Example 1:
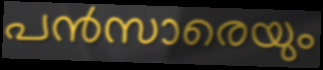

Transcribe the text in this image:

പൻസാരെയും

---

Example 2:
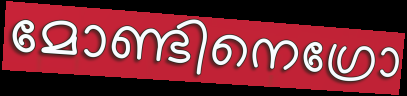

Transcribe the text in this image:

മോണ്ടിനെഗ്രോ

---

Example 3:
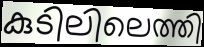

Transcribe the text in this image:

കുടിലിലെത്തി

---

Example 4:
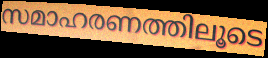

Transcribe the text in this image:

സമാഹരണത്തിലൂടെ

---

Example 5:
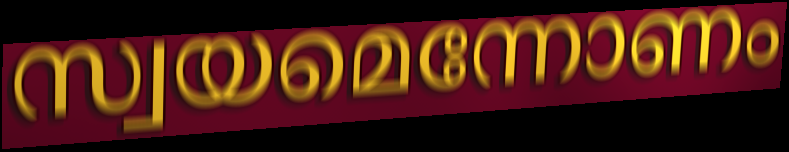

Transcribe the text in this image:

സ്വയമെന്നോണം